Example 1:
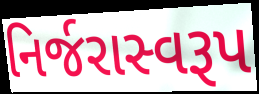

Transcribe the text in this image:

નિર્જરાસ્વરૂપ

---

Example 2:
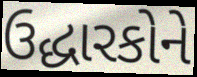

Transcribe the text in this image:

ઉદ્ધારકોને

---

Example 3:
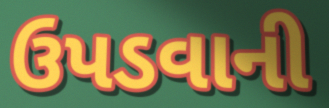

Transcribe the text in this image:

ઉપડવાની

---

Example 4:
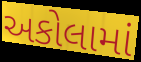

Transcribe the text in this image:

અકોલામાં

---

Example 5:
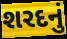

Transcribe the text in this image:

શરદનું